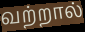
வற்றால்